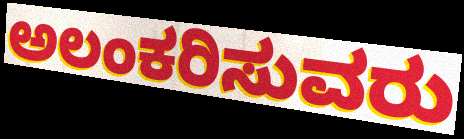
ಅಲಂಕರಿಸುವರು